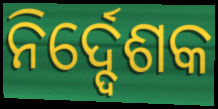
ନିର୍ଦ୍ଦେଶକ